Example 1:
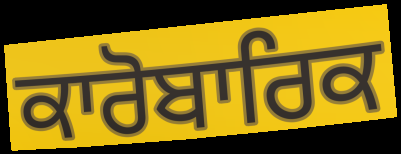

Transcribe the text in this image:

ਕਾਰੋਬਾਰਿਕ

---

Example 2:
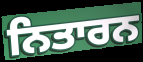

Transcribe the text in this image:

ਨਿਤਾਰਨ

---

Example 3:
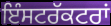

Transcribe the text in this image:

ਇੰਸਟਰੱਕਟਰਾਂ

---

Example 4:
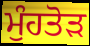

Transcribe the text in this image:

ਮੁੰਹਤੋੜ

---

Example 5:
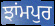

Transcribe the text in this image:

ਝਾਂਮਪੁਰ